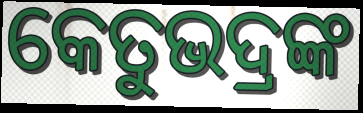
କେତୁଭଦ୍ରଙ୍କ